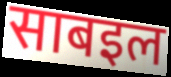
साबइल